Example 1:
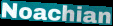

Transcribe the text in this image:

Noachian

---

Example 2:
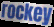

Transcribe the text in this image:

rockey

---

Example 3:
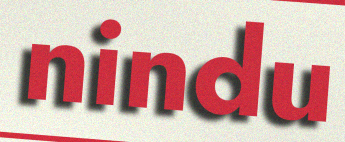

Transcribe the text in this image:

nindu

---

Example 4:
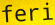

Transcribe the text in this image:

feri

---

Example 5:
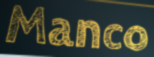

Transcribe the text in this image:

Manco